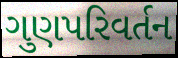
ગુણપરિવર્તન